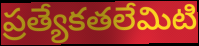
ప్రత్యేకతలేమిటి